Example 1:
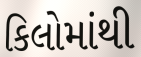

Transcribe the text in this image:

કિલોમાંથી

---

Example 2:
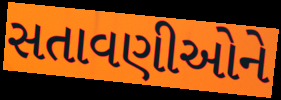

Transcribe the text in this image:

સતાવણીઓને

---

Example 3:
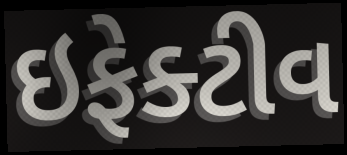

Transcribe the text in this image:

ઇફેક્ટીવ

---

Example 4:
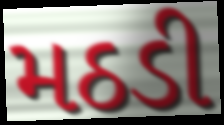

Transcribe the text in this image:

મઠડી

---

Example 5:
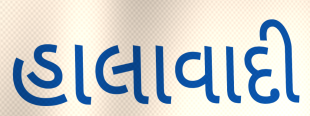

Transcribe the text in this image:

હાલાવાદી